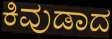
ಕಿವುಡಾದ